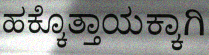
ಹಕ್ಕೊತ್ತಾಯಕ್ಕಾಗಿ